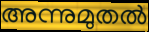
അന്നുമുതൽ